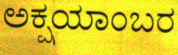
ಅಕ್ಷಯಾಂಬರ